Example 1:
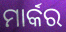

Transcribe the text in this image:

ମାର୍କର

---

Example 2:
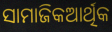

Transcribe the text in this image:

ସାମାଜିକଆର୍ଥିକ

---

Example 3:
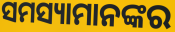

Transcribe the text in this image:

ସମସ୍ୟାମାନଙ୍କର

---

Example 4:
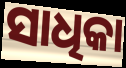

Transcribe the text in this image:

ସାଧିକା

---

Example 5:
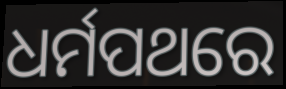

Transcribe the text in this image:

ଧର୍ମପଥରେ